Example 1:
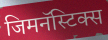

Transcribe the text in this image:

जिमनॅस्टिक्स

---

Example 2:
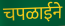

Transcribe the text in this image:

चपळाईने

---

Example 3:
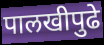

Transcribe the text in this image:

पालखीपुढे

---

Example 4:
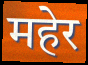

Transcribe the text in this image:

महेर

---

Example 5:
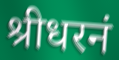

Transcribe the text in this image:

श्रीधरनं